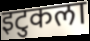
इटुकला